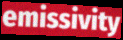
emissivity